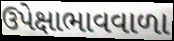
ઉપેક્ષાભાવવાળા